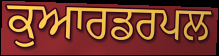
ਕੁਆਰਡਰਪਲ